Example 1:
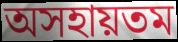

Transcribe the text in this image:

অসহায়তম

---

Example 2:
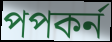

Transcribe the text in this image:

পপকর্ন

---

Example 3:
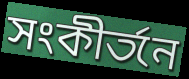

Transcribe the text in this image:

সংকীর্তনে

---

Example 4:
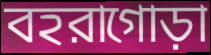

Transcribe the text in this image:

বহরাগোড়া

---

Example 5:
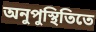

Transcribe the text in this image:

অনুপুস্থিতিতে